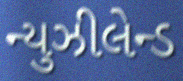
ન્યુઝીલેન્ડ